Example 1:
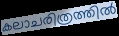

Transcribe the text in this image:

കലാചരിത്രത്തിൽ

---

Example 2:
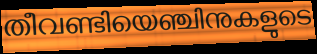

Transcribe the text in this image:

തീവണ്ടിയെഞ്ചിനുകളുടെ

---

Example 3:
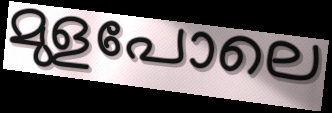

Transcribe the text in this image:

മുളപോലെ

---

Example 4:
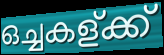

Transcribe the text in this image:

ഒച്ചകള്ക്ക്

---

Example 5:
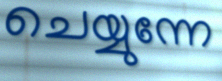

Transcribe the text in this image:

ചെയ്യുന്നേ